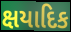
ક્ષયાદિક